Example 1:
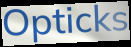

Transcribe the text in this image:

Opticks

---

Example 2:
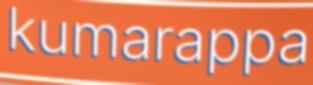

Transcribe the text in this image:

kumarappa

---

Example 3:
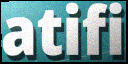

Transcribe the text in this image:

atifi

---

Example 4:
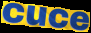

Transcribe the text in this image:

cuce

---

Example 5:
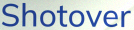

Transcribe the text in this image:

Shotover